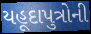
યહૂદાપુત્રોની